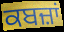
ਕਬਜ਼ਾਂ